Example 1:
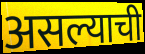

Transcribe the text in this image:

असल्याची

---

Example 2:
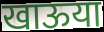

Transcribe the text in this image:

खाऊया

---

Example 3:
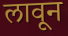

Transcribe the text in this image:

लावून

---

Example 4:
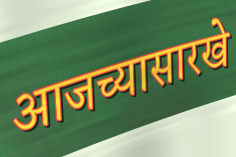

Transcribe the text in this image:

आजच्यासारखे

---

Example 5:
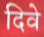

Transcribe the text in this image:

दिवे